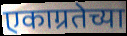
एकाग्रतेच्या